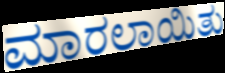
ಮಾರಲಾಯಿತು